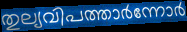
തുല്യവിപത്താർന്നോർ